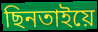
ছিনতাইয়ে